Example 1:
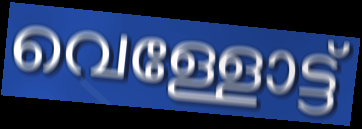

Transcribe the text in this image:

വെള്ളോട്ട്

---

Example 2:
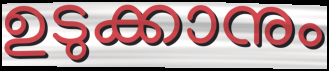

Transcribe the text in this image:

ഉടുക്കാനും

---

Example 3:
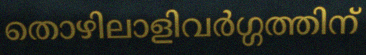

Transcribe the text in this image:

തൊഴിലാളിവർഗ്ഗത്തിന്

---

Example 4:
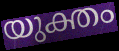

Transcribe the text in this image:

യുക്തം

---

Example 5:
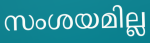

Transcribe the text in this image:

സംശയമില്ല